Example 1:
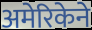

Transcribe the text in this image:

अमेरिकेने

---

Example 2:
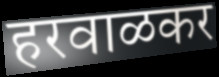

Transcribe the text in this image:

हरवाळकर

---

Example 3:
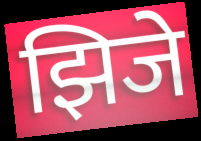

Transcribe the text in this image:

झिजे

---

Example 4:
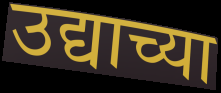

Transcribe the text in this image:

उद्याच्या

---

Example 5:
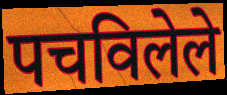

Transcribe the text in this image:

पचविलेले